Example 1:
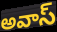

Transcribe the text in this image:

అవాస్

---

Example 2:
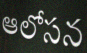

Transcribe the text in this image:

ఆలోసన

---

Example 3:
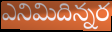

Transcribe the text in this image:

ఎనిమిదిన్నర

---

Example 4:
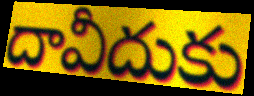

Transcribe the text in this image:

దావీదుకు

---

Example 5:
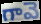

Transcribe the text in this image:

గావె